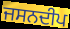
ਜਸਨਦੀਪ